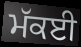
ਮੱਕਈ